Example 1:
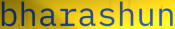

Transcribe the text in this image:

bharashun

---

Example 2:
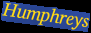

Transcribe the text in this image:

Humphreys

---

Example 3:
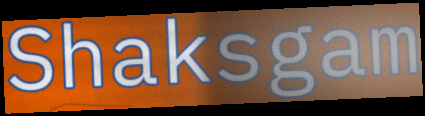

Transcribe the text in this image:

Shaksgam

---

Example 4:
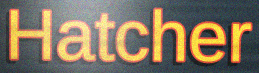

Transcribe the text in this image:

Hatcher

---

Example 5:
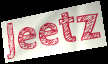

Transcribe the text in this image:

Jeetz